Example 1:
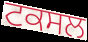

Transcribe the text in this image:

ਟਕਸਲ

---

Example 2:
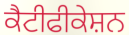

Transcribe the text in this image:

ਕੈਟੀਫੀਕੇਸ਼ਨ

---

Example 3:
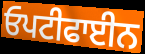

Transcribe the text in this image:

ਓਪਟੀਫਾਈਨ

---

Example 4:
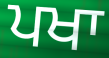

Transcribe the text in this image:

ਪਖਾ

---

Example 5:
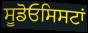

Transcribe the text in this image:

ਸੂਡੋਓਸਿਸਟਾਂ